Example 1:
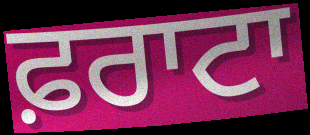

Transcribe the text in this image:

ਫ਼ਰਾਟਾ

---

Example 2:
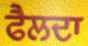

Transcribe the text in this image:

ਫੈਲਦਾ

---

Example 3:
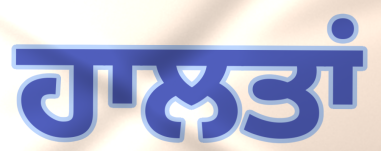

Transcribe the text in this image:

ਹਾਲਤਾਂ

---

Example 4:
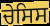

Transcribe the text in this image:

ਚੇਸਿਸ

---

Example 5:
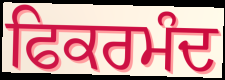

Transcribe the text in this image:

ਫਿਕਰਮੰਦ